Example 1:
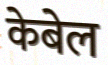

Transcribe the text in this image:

केबेल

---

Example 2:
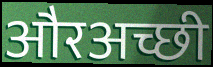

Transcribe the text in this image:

औरअच्छी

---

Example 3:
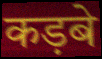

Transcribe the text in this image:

कड़बे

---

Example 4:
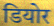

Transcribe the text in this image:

डियोर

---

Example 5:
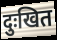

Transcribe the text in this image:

दुःखित